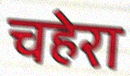
चहेरा